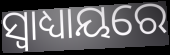
ସ୍ଵାଧ୍ୟାୟରେ